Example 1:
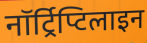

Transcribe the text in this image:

नॉर्ट्रिप्टिलाइन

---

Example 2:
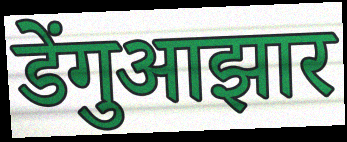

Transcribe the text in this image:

डेंगुआझार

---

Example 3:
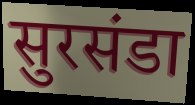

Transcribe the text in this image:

सुरसंडा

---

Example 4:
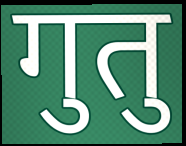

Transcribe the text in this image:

गुतु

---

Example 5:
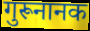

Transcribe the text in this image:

गुरूनानक